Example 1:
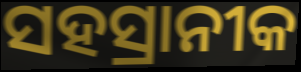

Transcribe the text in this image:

ସହସ୍ରାନୀକ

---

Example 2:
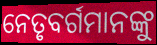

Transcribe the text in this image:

ନେତୃବର୍ଗମାନଙ୍କୁ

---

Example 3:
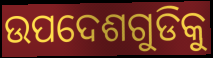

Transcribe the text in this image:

ଉପଦେଶଗୁଡିକୁ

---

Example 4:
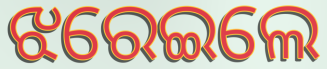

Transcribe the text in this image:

ଝରେଇଲେ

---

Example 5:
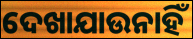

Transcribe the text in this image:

ଦେଖାଯାଉନାହିଁ